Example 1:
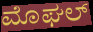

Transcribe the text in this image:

ಮೊಘಲ್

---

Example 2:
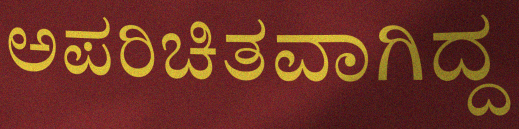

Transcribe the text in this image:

ಅಪರಿಚಿತವಾಗಿದ್ದ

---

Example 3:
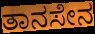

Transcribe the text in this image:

ತಾನಸೇನ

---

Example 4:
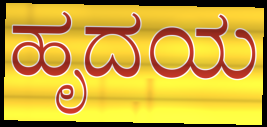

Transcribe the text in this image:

ಹೃದಯ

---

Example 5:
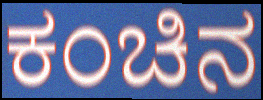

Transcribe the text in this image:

ಕಂಚಿನ